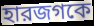
হারজগকে